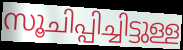
സൂചിപ്പിച്ചിട്ടുള്ള